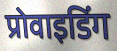
प्रोवाइडिंग